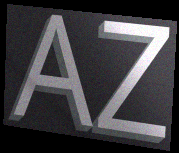
AZ